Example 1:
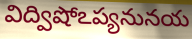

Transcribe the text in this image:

విద్విషోఽప్యనునయ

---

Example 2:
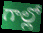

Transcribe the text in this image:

గాల్లో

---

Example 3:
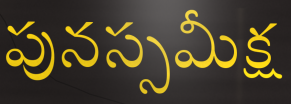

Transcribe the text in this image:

పునస్సమీక్ష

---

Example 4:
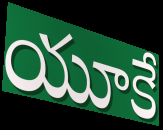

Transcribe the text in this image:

యూకే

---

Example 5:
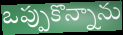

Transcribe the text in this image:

ఒప్పుకొన్నాను